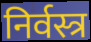
निर्वस्त्र